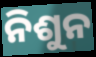
ନିଶୁନ